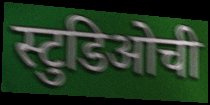
स्टुडिओची